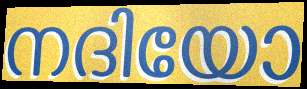
നദിയോ